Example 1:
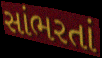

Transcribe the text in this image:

સાંભરતાં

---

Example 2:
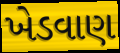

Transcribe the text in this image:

ખેડવાણ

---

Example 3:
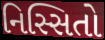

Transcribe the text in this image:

નિસ્સિતો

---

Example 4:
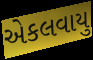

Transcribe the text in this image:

એકલવાયુ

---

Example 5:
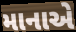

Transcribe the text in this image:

માનાએ